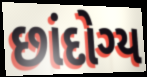
છાંદોગ્ય